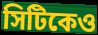
সিটিকেও